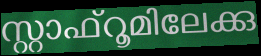
സ്റ്റാഫ്റൂമിലേക്കു